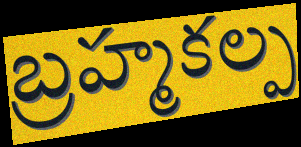
బ్రహ్మకల్ప